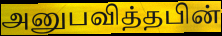
அனுபவித்தபின்